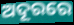
ଅଦୂରରେ